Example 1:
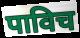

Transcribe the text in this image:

पाविच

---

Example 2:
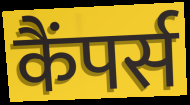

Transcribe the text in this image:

कैंपर्स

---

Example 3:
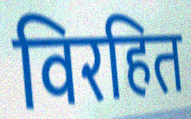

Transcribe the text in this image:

विरहित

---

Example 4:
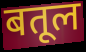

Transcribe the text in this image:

बतूल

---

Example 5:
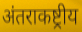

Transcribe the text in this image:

अंतराकष्ट्रीय